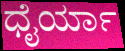
ಧೈರ್ಯಾ